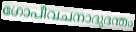
ഗോപീവചനാദുദന്തം